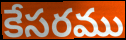
కేసరము